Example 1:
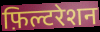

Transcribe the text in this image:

फ़िल्टरेशन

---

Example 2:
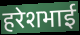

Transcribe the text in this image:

हरेशभाई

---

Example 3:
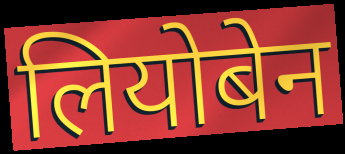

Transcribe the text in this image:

लियोबेन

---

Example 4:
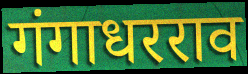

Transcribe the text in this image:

गंगाधरराव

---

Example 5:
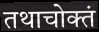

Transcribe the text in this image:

तथाचोक्तं